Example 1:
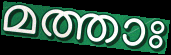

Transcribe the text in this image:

മത്താഃ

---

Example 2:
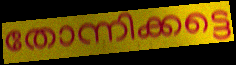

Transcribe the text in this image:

തോന്നിക്കട്ടെ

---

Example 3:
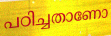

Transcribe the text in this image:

പഠിച്ചതാണോ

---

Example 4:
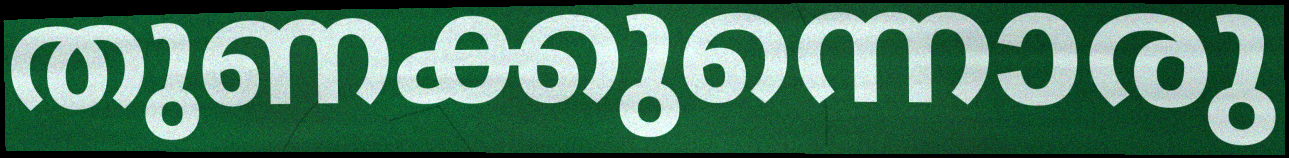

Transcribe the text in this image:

തുണക്കുന്നൊരു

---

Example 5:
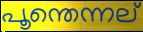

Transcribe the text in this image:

പൂന്തെന്നല്